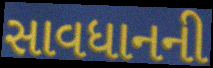
સાવધાનની